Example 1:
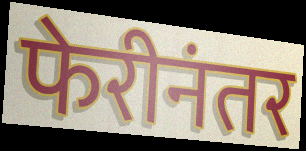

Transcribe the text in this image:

फेरीनंतर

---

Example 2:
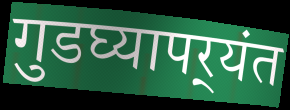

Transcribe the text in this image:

गुडघ्यापर्यंत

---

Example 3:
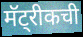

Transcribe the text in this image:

मॅट्रीकची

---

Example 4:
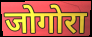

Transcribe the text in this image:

जोगोरा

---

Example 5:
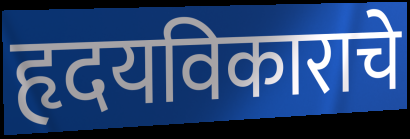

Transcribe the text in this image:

हृदयविकाराचे